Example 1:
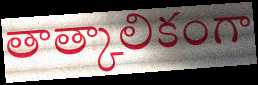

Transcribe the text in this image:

తాత్కాలికంగా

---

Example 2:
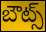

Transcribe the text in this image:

బౌట్స్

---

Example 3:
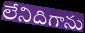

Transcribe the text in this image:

లేనిదిగాను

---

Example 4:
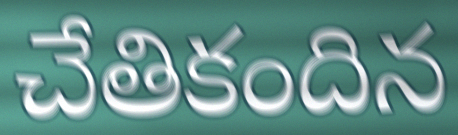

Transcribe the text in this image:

చేతికందిన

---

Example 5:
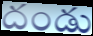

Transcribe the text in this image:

దండు